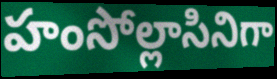
హంసోల్లాసినిగా